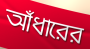
আঁধারের